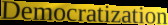
Democratization